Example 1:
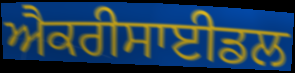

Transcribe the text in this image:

ਐਕਰੀਸਾਈਡਲ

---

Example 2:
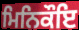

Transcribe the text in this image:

ਮਿਨਿਕੌਇ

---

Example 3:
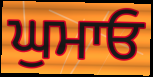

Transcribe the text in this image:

ਘੁਮਾਓ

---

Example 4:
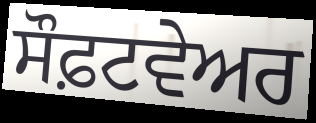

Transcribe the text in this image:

ਸੌਫ਼ਟਵੇਅਰ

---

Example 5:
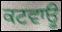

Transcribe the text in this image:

ਕਟਵਾਊ